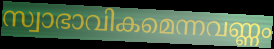
സ്വാഭാവികമെന്നവണ്ണം